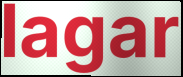
lagar